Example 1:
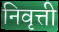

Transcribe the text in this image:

निवृत्ती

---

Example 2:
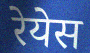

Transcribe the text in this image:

रेयेस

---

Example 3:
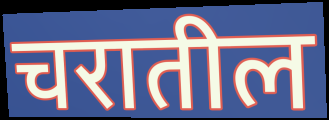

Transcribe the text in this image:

चरातील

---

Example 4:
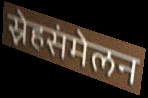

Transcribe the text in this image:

स्नेहसंमेलन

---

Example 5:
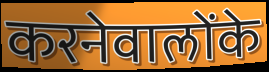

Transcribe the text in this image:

करनेवालोंके